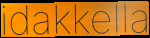
idakkella